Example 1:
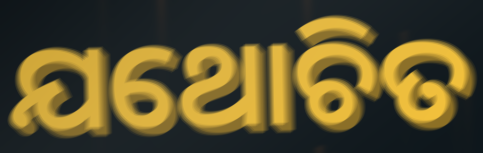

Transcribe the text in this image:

ଯଥୋଚିତ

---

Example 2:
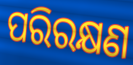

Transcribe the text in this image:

ପରିରକ୍ଷଣ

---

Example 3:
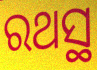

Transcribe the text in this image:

ରଥସ୍ଥ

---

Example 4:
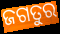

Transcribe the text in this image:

ଜଗତୁର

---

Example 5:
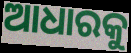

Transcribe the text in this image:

ଆଧାରକୁ